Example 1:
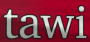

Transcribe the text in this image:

tawi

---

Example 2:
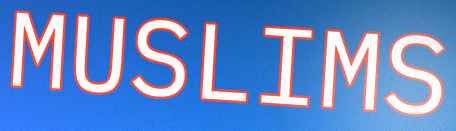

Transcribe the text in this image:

MUSLIMS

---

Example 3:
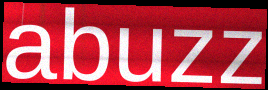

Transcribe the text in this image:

abuzz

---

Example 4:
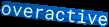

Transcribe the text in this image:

overactive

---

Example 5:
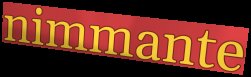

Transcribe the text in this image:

nimmante